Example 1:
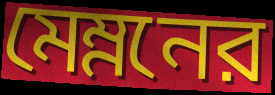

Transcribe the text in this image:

মেম্ননের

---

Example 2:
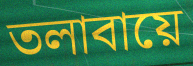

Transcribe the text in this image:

তলাবায়ে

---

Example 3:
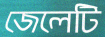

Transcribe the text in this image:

জেলেটি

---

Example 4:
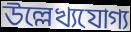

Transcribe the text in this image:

উল্লেখ্যযোগ্য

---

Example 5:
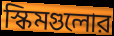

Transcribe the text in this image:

স্কিমগুলোর